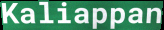
Kaliappan